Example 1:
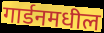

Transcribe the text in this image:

गार्डनमधील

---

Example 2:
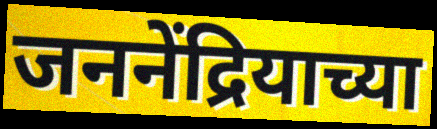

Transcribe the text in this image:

जननेंद्रियाच्या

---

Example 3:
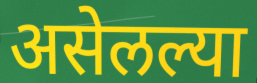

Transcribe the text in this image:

असेलल्या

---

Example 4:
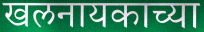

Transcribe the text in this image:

खलनायकाच्या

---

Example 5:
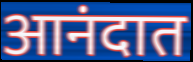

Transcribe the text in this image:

आनंदात